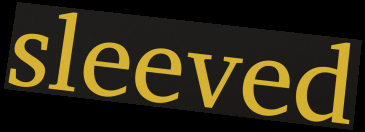
sleeved